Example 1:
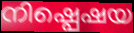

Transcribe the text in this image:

നിഷ്പെഷയ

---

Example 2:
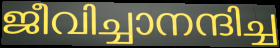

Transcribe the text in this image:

ജീവിച്ചാനന്ദിച്ച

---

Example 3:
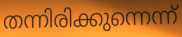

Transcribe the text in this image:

തന്നിരിക്കുന്നെന്ന്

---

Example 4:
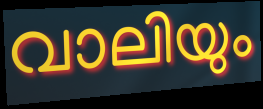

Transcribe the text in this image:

വാലിയും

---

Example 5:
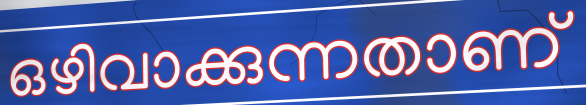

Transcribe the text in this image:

ഒഴിവാക്കുന്നതാണ്